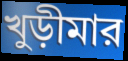
খুড়ীমার